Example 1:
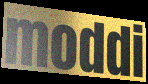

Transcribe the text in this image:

moddi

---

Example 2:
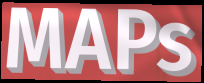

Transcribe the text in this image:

MAPs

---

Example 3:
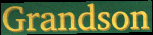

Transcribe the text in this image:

Grandson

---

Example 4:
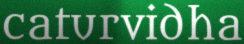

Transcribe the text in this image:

caturvidha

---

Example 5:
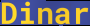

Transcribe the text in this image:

Dinar